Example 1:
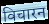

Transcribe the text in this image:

विचारन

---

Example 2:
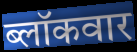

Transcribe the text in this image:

ब्लॉकवार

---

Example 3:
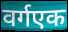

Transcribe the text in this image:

वर्गएक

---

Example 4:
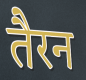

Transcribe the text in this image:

तैरन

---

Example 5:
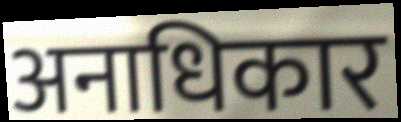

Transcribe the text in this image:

अनाधिकार